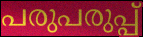
പരുപരുപ്പ്